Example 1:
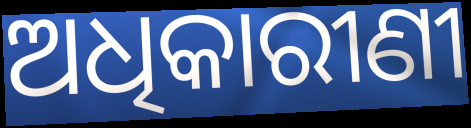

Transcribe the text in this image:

ଅଧିକାରୀଣୀ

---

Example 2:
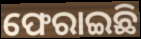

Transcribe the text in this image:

ଫେରାଇଛି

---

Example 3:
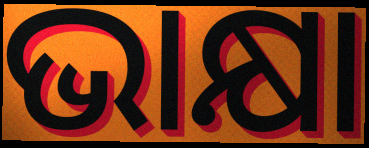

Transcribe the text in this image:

ଭାକ୍ଷା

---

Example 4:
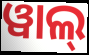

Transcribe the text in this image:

ୱାଲ୍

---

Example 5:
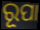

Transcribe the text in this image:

ରୂପା